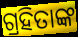
ଗ୍ରହିତାଙ୍କ